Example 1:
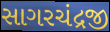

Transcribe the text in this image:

સાગરચંદ્રજી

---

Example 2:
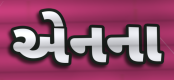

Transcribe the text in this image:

એનના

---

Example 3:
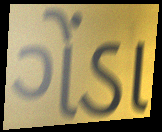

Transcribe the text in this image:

ગેંડા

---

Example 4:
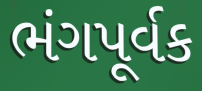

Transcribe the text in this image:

ભંગપૂર્વક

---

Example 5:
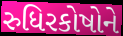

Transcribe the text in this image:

રુધિરકોષોને